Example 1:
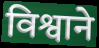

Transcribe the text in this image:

विश्वाने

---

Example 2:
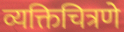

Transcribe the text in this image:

व्यक्तिचित्रणे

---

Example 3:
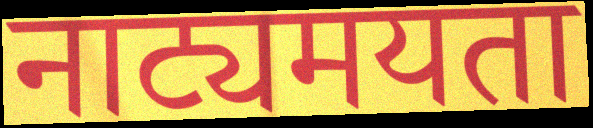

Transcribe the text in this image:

नाट्यमयता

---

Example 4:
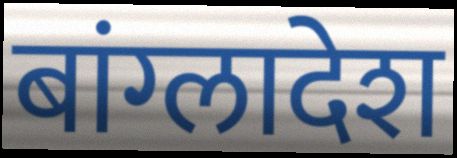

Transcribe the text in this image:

बांग्लादेश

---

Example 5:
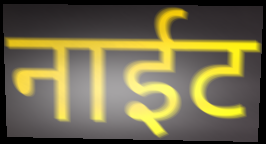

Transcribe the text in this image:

नाईट